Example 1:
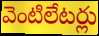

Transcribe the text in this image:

వెంటిలేటర్లు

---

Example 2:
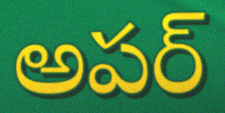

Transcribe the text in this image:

అపర్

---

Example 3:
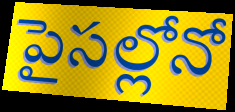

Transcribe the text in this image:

పైసల్లోనో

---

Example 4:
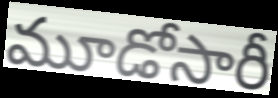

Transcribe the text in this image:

మూడోసారీ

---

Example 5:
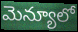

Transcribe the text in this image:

మెన్యూలో